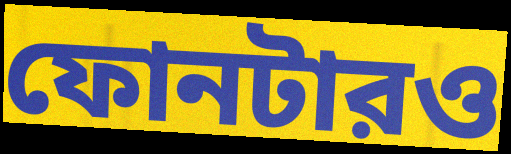
ফোনটারও